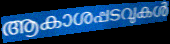
ആകാശപ്പടവുകൾ